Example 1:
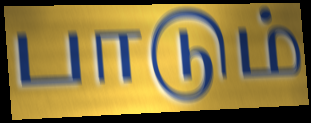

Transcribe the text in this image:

பாடும்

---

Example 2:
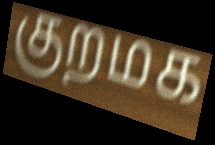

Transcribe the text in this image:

குறமக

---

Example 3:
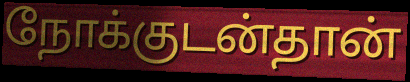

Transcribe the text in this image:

நோக்குடன்தான்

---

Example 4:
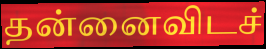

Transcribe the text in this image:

தன்னைவிடச்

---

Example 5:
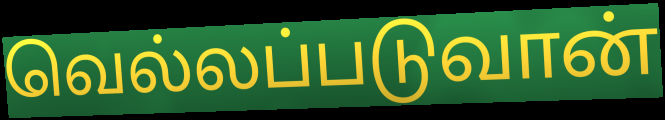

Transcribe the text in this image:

வெல்லப்படுவான்